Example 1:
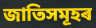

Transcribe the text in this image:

জাতিসমূহৰ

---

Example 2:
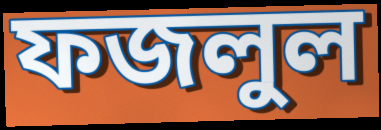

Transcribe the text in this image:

ফজলুল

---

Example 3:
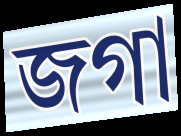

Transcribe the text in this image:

জগা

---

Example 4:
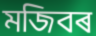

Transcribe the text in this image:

মজিবৰ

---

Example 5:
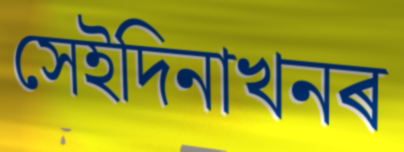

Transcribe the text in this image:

সেইদিনাখনৰ